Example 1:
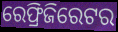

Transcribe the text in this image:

ରେଫ୍ରିଜିରେଟର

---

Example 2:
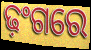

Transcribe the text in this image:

ଢ଼ଂଗରେ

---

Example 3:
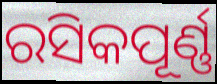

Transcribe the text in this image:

ରସିକପୂର୍ଣ୍ଣ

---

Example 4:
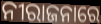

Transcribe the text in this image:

ନୀରାଜନାରେ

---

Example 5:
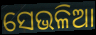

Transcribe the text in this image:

ସେଭଳିଆ